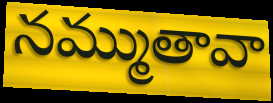
నమ్ముతావా